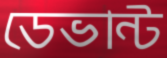
ডেভান্ট